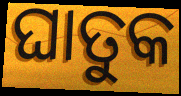
ଘାତୁକ